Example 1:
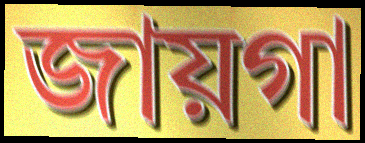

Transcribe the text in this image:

জায়গা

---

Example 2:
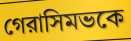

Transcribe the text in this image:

গেরাসিমভকে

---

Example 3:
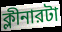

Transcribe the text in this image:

ক্লীনারটা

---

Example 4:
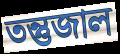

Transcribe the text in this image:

তন্তুজাল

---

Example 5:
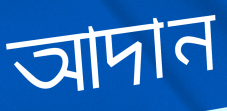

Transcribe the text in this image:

আদান